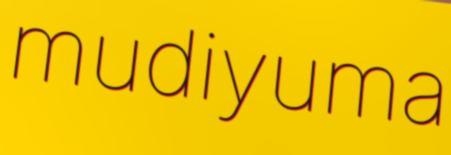
mudiyuma